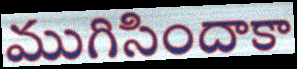
ముగిసిందాకా